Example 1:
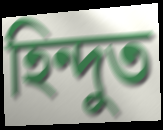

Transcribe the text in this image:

হিন্দুত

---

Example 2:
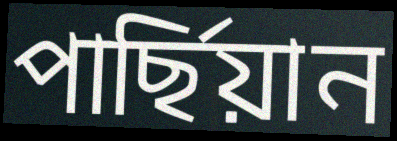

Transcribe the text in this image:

পাৰ্ছিয়ান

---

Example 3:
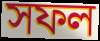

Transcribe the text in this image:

সফল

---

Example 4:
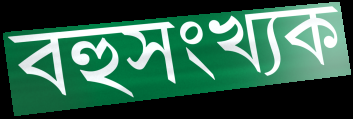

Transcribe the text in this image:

বহুসংখ্যক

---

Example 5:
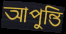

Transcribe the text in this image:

আপুন্তি